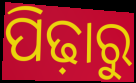
ପିଢ଼ାରୁ